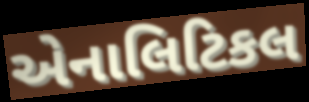
એનાલિટિકલ